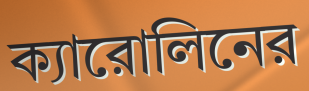
ক্যারোলিনের